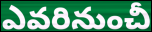
ఎవరినుంచీ